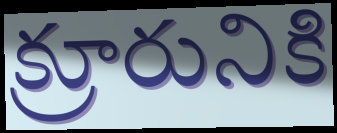
క్రూరునికి